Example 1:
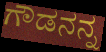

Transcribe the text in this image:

ಗೌಡನನ್ನ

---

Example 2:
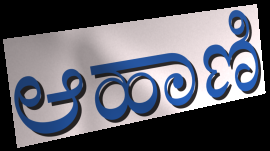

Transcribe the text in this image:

ಆಹಾಣಿ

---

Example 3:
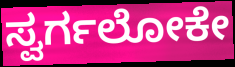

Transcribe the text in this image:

ಸ್ವರ್ಗಲೋಕೇ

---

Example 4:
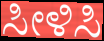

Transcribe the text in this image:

ಸೀಳಿಸಿ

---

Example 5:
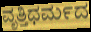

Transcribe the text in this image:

ವೃತ್ತಿಧರ್ಮದ